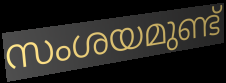
സംശയമുണ്ട്